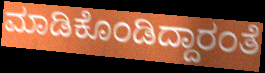
ಮಾಡಿಕೊಂಡಿದ್ದಾರಂತೆ